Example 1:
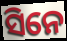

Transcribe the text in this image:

ସିନେ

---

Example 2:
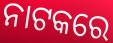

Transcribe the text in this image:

ନାଟକରେ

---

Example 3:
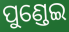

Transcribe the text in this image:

ପୁଣ୍ଡେଇ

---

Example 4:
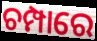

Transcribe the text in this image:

ଚମ୍ପାରେ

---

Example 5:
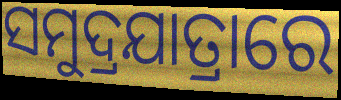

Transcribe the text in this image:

ସମୁଦ୍ରଯାତ୍ରାରେ